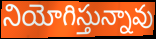
నియోగిస్తున్నావు